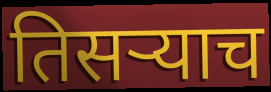
तिसर्‍याच